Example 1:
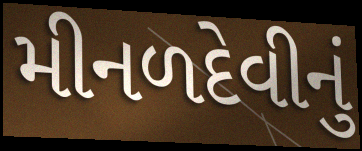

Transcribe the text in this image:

મીનળદેવીનું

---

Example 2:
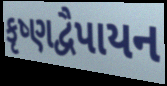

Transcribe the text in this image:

કૃષ્ણદ્વૈપાયન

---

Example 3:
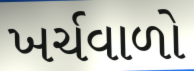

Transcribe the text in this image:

ખર્ચવાળો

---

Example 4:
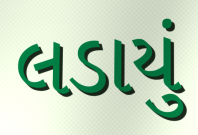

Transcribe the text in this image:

લડાયું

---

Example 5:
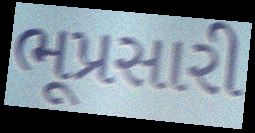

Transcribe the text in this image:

ભૂપ્રસારી